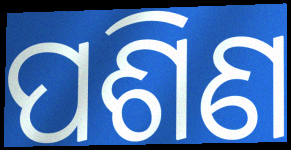
ପଶିଣ